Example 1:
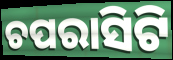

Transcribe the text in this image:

ଚପରାସିଟି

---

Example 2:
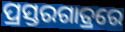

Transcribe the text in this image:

ପ୍ରସ୍ତରଗାତ୍ରରେ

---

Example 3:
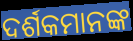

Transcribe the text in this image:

ଦର୍ଶକମାନଙ୍କ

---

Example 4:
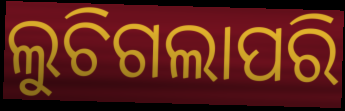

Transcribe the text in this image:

ଲୁଚିଗଲାପରି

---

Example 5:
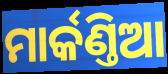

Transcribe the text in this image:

ମାର୍କଣ୍ତିଆ